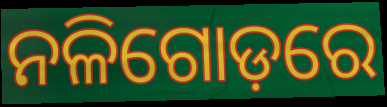
ନଳିଗୋଡ଼ରେ